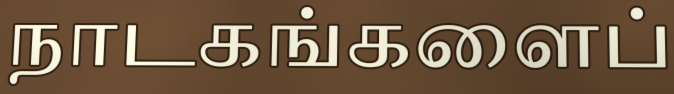
நாடகங்களைப்